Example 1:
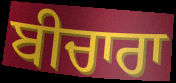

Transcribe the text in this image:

ਬੀਚਾਰਾ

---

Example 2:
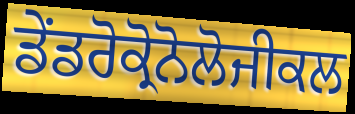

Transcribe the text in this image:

ਡੇਂਡਰੋਕ੍ਰੋਨੋਲੋਜੀਕਲ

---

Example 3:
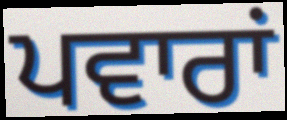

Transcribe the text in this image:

ਪਵਾਰਾਂ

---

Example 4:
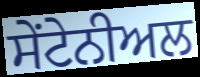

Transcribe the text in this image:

ਸੇਂਟੇਨੀਅਲ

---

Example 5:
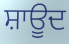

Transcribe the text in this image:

ਸ਼ਾਊਦ